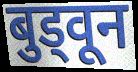
बुड्वून